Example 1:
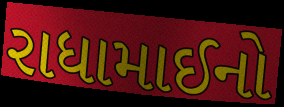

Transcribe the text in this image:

રાધામાઈનો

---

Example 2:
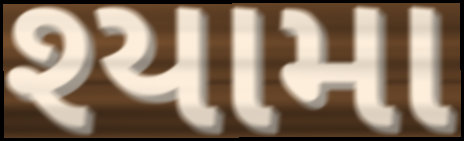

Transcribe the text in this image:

શ્યામા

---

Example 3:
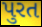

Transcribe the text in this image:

પુરત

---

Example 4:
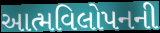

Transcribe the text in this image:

આત્મવિલોપનની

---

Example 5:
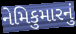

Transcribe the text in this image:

નેમિકુમારનું